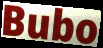
Bubo